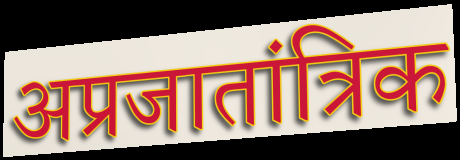
अप्रजातांत्रिक